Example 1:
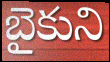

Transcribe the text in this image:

బైకుని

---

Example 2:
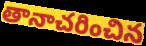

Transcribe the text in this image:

తానాచరించిన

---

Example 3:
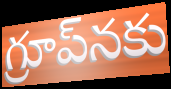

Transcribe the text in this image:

గ్రూప్‌నకు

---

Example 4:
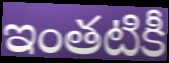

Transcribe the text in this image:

ఇంతటికీ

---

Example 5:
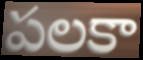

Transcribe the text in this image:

పలకా